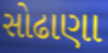
સોઢાણા